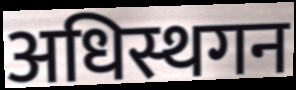
अधिस्थगन